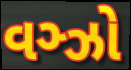
વઞ્ઝો